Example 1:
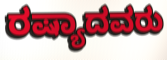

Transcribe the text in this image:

ರಷ್ಯಾದವರು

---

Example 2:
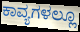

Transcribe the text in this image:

ಕಾವ್ಯಗಳಲ್ಲೂ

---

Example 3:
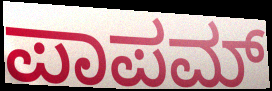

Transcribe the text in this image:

ಪಾಪಮ್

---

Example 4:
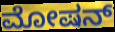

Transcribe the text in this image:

ಮೋಷನ್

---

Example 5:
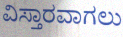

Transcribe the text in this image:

ವಿಸ್ತಾರವಾಗಲು